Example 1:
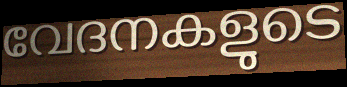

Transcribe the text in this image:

വേദനകളുടെ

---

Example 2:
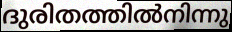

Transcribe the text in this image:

ദുരിതത്തിൽനിന്നു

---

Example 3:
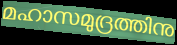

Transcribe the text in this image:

മഹാസമുദ്രത്തിനു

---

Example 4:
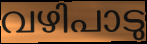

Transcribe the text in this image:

വഴിപാടു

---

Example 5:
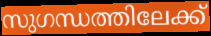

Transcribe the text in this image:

സുഗന്ധത്തിലേക്ക്